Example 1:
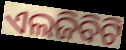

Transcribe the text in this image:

ଏଲଜିବିଟି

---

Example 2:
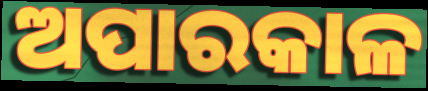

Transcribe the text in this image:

ଅପାରକାଳ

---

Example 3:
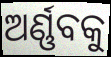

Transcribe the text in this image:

ଅର୍ଣ୍ଣବକୁ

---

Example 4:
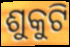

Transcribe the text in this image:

ଶୁକୁଟି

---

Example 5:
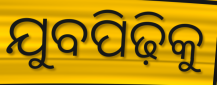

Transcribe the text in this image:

ଯୁବପିଢ଼ିକୁ